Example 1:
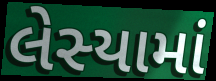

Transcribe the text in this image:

લેસ્યામાં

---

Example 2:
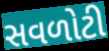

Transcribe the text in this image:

સવળોટી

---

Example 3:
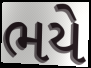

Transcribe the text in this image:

ભયે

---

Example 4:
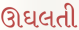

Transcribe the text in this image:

ઊઘલતી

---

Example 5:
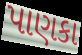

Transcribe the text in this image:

પાણકા